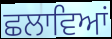
ਛਲਾਵਿਆਂ